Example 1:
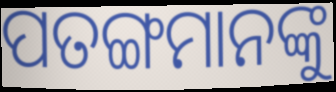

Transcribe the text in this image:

ପତଙ୍ଗମାନଙ୍କୁ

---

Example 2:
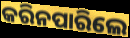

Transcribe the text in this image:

କରିନପାରିଲେ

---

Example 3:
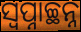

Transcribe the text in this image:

ସ୍ଵପ୍ନାଚ୍ଛନ୍ନ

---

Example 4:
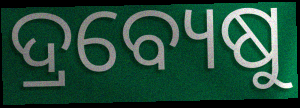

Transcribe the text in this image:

ଦ୍ରବ୍ୟେଷୁ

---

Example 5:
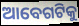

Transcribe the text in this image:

ଆବେଗଟିକୁ